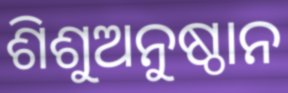
ଶିଶୁଅନୁଷ୍ଠାନ